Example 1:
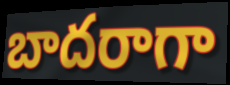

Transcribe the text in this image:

బాదరాగా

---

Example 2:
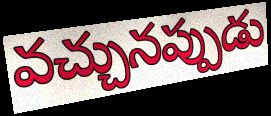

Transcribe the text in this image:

వచ్చునప్పుడు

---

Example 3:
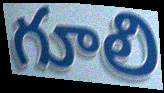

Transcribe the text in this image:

గూలి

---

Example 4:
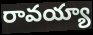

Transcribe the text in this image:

రావయ్యా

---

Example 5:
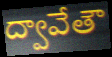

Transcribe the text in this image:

ద్వావేతౌ